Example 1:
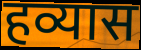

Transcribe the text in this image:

हव्यास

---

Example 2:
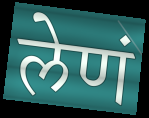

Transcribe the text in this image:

लेणं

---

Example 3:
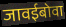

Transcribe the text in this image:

जावईबोवा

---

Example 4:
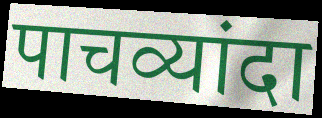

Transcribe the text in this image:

पाचव्यांदा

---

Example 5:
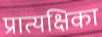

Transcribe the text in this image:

प्रात्यक्षिका